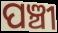
ପଞ୍ଚୀ